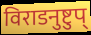
विराडनुष्टुप्